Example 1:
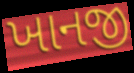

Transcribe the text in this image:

ખાનજી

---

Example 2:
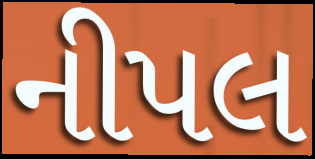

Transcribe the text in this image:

નીપલ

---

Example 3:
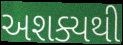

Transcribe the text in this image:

અશક્યથી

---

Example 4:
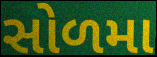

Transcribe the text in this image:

સોળમા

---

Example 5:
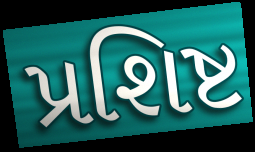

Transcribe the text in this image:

પ્રશિષ્ટ